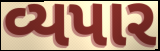
વ્યપાર